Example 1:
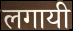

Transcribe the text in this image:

लगायी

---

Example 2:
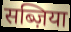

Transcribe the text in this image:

सब्ज़िया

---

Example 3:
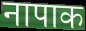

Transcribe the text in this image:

नापाक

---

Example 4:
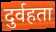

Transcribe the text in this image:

दुर्वहता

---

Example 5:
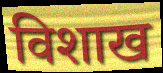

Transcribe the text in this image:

विशाख